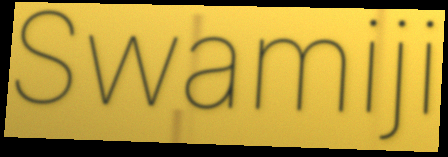
Swamiji